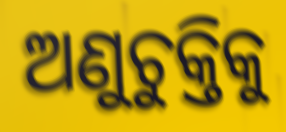
ଅଣୁଚୁକ୍ତିକୁ